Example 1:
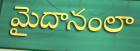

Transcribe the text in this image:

మైదానంలా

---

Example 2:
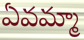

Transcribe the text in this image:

ఏవమ్మా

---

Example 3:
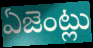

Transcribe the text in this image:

ఏజెంట్లు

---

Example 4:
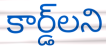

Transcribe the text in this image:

కార్డ్‌లని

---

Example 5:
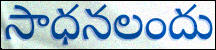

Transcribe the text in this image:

సాధనలందు